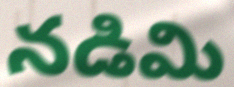
నడిమి